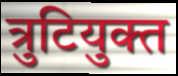
त्रुटियुक्त